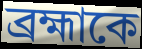
ব্রহ্মাকে